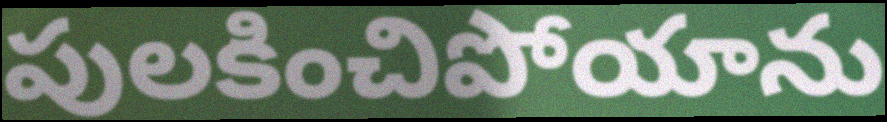
పులకించిపోయాను